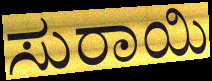
ಸುರಾಯಿ